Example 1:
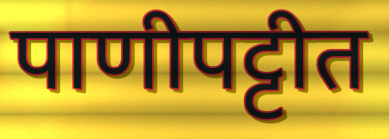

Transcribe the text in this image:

पाणीपट्टीत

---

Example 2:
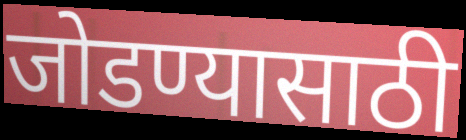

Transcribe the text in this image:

जोडण्यासाठी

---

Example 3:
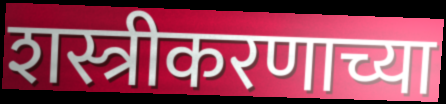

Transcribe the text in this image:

शस्त्रीकरणाच्या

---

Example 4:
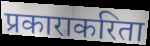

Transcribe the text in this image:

प्रकाराकरिता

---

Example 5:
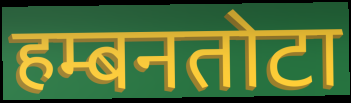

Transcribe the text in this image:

हम्बनतोटा